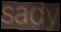
sady